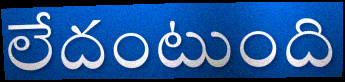
లేదంటుంది